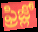
ఫ్రిజ్లో